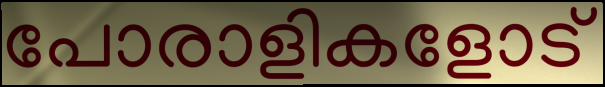
പോരാളികളോട്